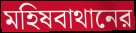
মহিষবাথানের